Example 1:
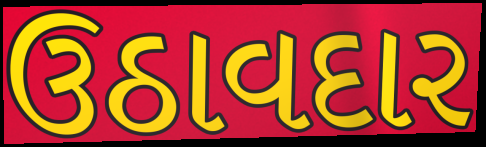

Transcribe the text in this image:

ઉઠાવદાર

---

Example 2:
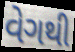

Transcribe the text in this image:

વેગથી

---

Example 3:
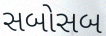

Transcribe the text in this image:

સબોસબ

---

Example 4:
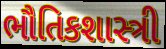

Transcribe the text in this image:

ભૌતિકશાસ્ત્રી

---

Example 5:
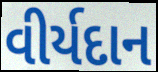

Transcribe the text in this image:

વીર્યદાન